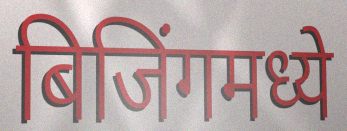
बिजिंगमध्ये